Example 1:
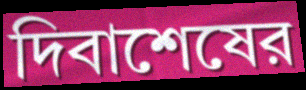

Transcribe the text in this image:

দিবাশেষের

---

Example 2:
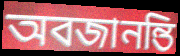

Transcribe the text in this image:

অবজানন্তি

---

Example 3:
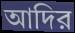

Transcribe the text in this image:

আদির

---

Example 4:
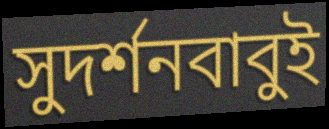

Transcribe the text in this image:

সুদর্শনবাবুই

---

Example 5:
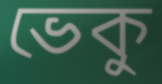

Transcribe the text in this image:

ভেকু